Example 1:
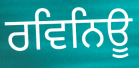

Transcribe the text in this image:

ਰਵਿਨਿਊ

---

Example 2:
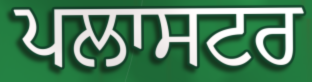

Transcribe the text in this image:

ਪਲਾਸਟਰ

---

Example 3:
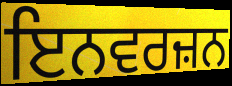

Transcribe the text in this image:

ਇਨਵਰਜ਼ਨ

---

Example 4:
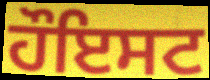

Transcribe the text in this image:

ਹੌਇਸਟ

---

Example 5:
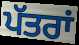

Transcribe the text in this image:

ਪੱਤਰਾਂ